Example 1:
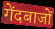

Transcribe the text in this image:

गेंदबाजों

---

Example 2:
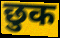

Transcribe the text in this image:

छुक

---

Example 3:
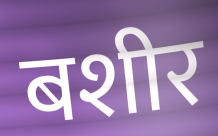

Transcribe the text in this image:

बशीर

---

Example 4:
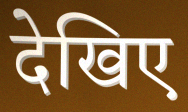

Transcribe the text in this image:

देखिए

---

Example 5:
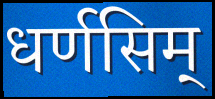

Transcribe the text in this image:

धर्णसिम्